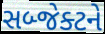
સબ્જેક્ટને